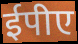
ईपीए